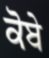
ਕੋਬੇ